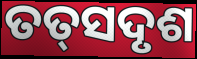
ତତ୍‌ସଦୃଶ